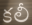
కలీ